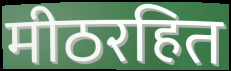
मीठरहित